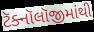
ટૅક્નૉલૉજીમાંથી